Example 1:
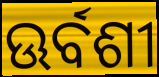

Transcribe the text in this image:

ଊର୍ବଶୀ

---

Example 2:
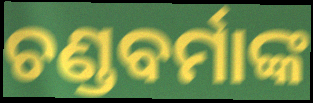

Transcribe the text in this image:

ଚଣ୍ଡବର୍ମାଙ୍କ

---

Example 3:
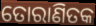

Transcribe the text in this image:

ତୋରାଣିତକ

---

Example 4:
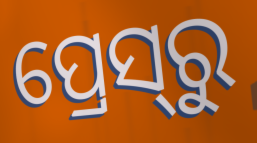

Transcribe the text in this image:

ପ୍ରେସ୍‍ରୁ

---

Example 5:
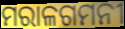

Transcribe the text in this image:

ମରାଳଗମନୀ